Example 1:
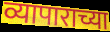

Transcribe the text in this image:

व्यापाराच्या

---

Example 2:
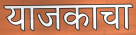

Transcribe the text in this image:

याजकाचा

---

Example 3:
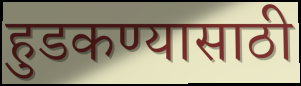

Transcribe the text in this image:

हुडकण्यासाठी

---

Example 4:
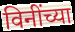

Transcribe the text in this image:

विनींच्या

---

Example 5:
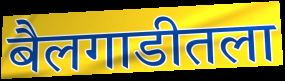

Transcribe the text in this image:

बैलगाडीतला